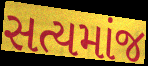
સત્યમાંજ